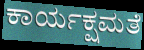
ಕಾರ್ಯಕ್ಷಮತೆ